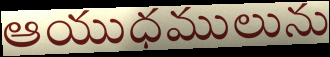
ఆయుధములును